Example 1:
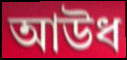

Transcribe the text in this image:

আউধ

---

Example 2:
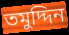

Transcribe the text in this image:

তমুদ্দিন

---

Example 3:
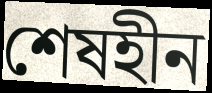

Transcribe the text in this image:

শেষহীন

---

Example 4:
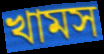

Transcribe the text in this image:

খামস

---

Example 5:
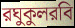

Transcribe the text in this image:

রঘুকুলরবি